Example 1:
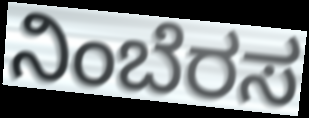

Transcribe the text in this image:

ನಿಂಬೆರಸ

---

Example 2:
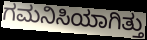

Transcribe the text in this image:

ಗಮನಿಸಿಯಾಗಿತ್ತು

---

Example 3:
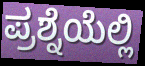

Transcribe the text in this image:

ಪ್ರಶ್ನೆಯೆಲ್ಲಿ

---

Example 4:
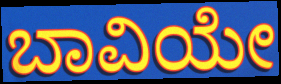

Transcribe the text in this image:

ಬಾವಿಯೇ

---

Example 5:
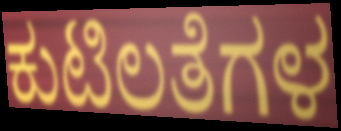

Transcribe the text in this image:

ಕುಟಿಲತೆಗಳ